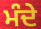
ਮੰਦੇ